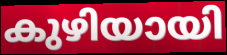
കുഴിയായി